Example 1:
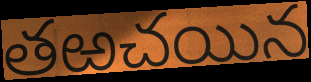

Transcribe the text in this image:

తఱచయిన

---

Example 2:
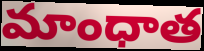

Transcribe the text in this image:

మాంధాత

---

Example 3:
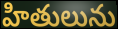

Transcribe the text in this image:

హితులును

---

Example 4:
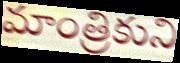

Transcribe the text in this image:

మాంత్రికుని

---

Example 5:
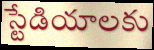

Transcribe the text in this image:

స్టేడియాలకు